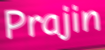
Prajin